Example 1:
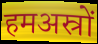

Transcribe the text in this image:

हमअस्रों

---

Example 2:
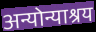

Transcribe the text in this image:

अन्योन्याश्रय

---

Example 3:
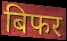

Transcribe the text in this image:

बिफर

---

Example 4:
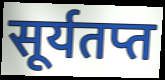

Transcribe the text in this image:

सूर्यतप्त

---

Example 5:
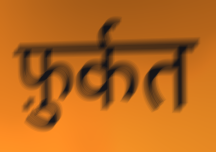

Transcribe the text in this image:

फ़ुर्कत